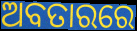
ଅବତାରରେ